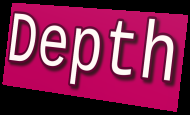
Depth